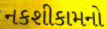
નકશીકામનો